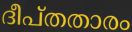
ദീപ്തതാരം